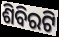
ଶିବିରଟି